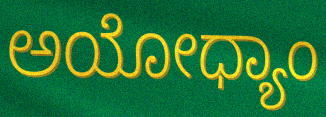
ಅಯೋಧ್ಯಾಂ